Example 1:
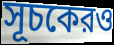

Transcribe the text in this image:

সূচকেরও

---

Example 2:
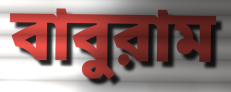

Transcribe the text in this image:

বাবুরাম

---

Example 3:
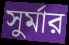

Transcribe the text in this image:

সুর্মার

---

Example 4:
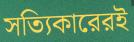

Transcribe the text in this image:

সত্যিকারেরই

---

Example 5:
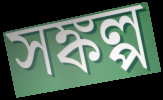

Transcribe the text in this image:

সঙ্কল্প